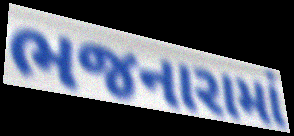
ભજનારામાં